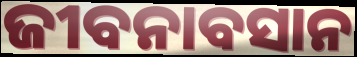
ଜୀବନାବସାନ